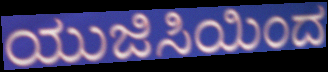
ಯುಜಿಸಿಯಿಂದ